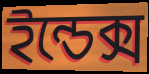
ইন্ডেক্স